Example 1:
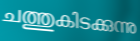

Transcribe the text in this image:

ചത്തുകിടക്കുന്നു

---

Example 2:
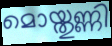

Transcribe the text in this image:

മൊയ്തുണ്ണി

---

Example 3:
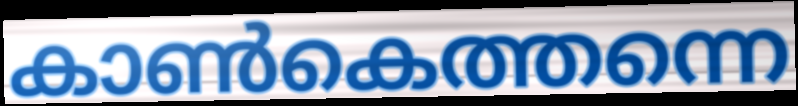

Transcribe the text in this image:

കാൺകെത്തന്നെ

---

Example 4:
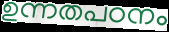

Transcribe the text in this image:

ഉന്നതപഠനം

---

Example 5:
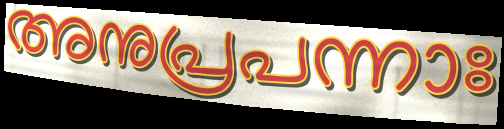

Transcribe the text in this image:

അനുപ്രപന്നാഃ